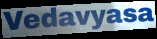
Vedavyasa